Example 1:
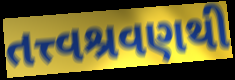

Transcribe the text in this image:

તત્ત્વશ્રવણથી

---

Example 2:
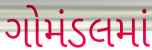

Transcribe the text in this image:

ગોમંડલમાં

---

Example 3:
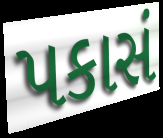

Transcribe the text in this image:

પકાસં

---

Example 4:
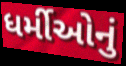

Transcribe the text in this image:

ધર્મીઓનું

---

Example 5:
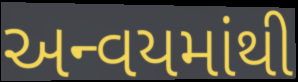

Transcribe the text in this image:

અન્વયમાંથી